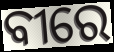
ବୀରେ